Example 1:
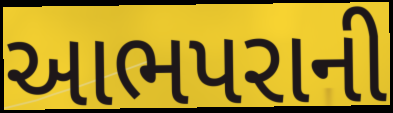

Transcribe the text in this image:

આભપરાની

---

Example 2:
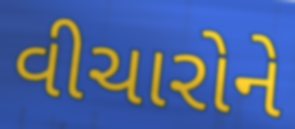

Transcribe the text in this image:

વીચારોને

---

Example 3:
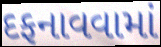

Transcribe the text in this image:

દફનાવવામાં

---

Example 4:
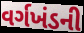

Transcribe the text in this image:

વર્ગખંડની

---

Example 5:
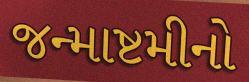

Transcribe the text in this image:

જન્માષ્ટમીનો